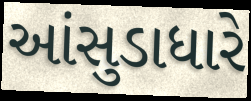
આંસુડાધારે